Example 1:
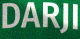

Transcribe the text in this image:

DARJI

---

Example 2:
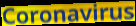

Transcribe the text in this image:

Coronavirus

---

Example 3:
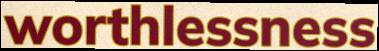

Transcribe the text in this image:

worthlessness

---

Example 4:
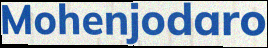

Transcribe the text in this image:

Mohenjodaro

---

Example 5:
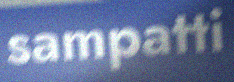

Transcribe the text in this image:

sampatti